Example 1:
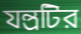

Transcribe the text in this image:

যন্ত্রটির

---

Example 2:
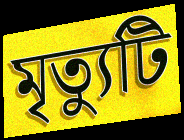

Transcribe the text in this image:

মৃত্যুটি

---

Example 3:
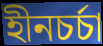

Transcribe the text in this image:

হীনচর্চা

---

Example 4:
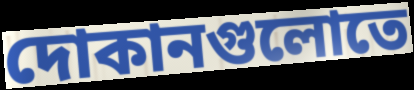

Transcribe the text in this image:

দোকানগুলোতে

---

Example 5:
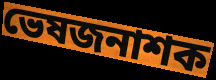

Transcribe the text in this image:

ভেষজনাশক